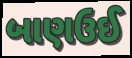
બાણઉઈ